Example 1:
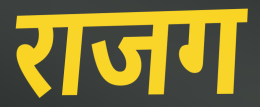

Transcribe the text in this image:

राजग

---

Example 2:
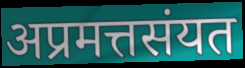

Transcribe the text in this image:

अप्रमत्तसंयत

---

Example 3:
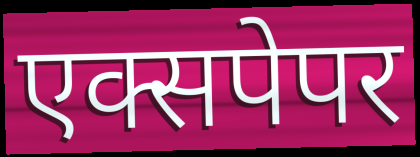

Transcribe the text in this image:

एक्सपेपर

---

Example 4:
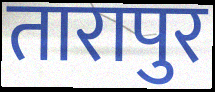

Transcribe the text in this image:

तारापुर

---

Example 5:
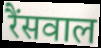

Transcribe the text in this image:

रैंसवाल